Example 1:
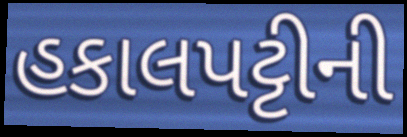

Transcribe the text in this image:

હકાલપટ્ટીની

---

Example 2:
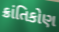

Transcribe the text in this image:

ક્રાંતિકોણ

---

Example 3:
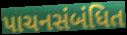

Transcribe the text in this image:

પાચનસંબંધિત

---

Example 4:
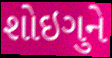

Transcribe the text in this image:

શોઇગુને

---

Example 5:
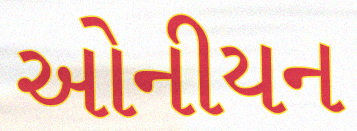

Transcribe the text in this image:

ઓનીયન